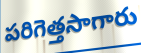
పరిగెత్తసాగారు